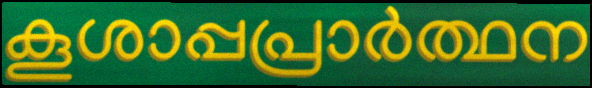
കൂശാപ്പപ്രാർത്ഥന